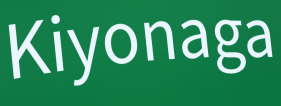
Kiyonaga